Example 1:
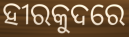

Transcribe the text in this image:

ହୀରକୁଦରେ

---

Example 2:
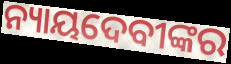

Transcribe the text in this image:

ନ୍ୟାୟଦେବୀଙ୍କର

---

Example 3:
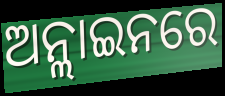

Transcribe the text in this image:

ଅନ୍ଲାଇନରେ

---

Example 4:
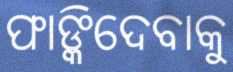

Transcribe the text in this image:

ଫାଙ୍କିଦେବାକୁ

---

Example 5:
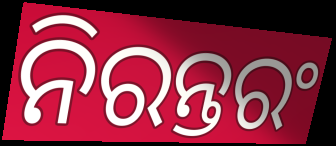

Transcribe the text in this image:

ନିରନ୍ତରଂ